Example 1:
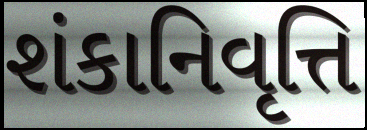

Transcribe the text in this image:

શંકાનિવૃત્તિ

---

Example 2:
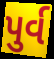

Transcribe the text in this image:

પુર્વ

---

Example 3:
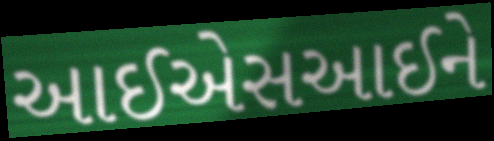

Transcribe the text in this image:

આઈએસઆઈને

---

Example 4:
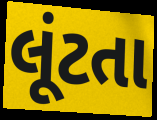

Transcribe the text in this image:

લૂંટતા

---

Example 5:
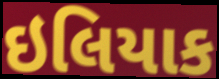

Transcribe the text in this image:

ઇલિયાક